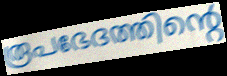
രൂപഭേദത്തിന്റെ